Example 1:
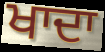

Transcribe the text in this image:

ਖਾਦਾ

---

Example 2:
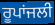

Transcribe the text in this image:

ਰੂਪਾਂਜਲੀ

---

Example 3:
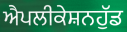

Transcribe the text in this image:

ਐਪਲੀਕੇਸ਼ਨਹੁੱਡ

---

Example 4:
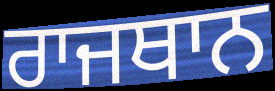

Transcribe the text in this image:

ਰਾਜਥਾਨ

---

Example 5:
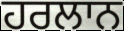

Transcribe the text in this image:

ਹਰਲਾਨ